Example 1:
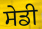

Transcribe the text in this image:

ਸੇਡੀ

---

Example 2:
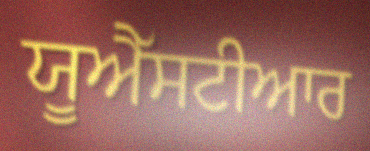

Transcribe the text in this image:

ਯੂਐੱਸਟੀਆਰ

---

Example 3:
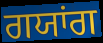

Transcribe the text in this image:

ਗਯਾਂਗ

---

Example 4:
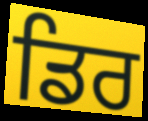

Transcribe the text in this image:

ਡਿਰ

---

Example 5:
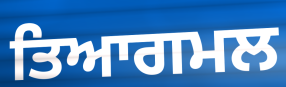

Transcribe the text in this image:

ਤਿਆਗਮਲ